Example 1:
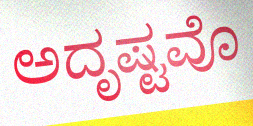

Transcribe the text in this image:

ಅದೃಷ್ಟವೊ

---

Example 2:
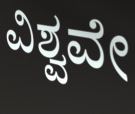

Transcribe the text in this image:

ವಿಶ್ವವೇ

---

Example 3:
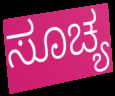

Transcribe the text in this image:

ಸೂಚ್ಯ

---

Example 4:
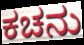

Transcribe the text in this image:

ಕಚನು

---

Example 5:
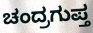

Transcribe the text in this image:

ಚಂದ್ರಗುಪ್ತ